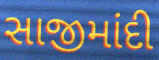
સાજીમાંદી